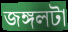
জঙ্গলটা